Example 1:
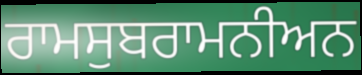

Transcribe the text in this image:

ਰਾਮਸੁਬਰਾਮਨੀਅਨ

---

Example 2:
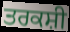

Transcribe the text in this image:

ਤਰਕਸ਼ੀ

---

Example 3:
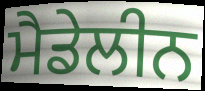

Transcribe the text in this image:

ਮੈਡੇਲੀਨ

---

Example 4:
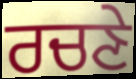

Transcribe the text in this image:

ਰਚਣੇ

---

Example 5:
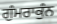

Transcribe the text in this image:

ਗੁੰਮਰਾਕੁੰਨ